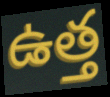
ఉత్త